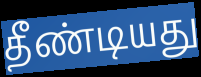
தீண்டியது